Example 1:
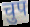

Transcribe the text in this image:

चुप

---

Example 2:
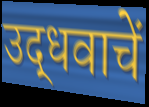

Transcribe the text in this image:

उद्धवाचें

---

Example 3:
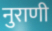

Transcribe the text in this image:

नुराणी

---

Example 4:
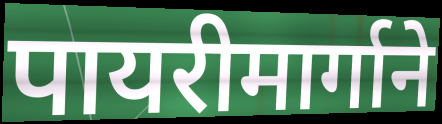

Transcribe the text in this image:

पायरीमार्गाने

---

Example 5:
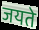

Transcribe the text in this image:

जयते